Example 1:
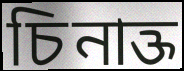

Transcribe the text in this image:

চিনাক্ত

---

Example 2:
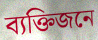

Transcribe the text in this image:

ব্যক্তিজনে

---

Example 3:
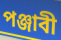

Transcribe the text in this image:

পঞ্জাবী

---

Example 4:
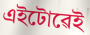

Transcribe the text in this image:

এইটোৱেই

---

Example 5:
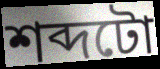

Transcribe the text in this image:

শব্দটো